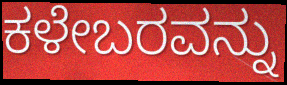
ಕಳೇಬರವನ್ನು